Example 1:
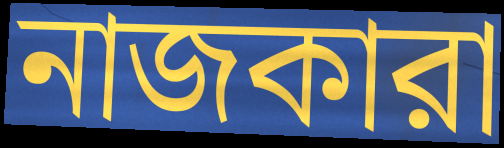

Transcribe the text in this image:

নাজকারা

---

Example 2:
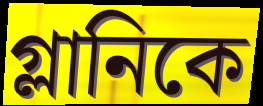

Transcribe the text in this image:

গ্লানিকে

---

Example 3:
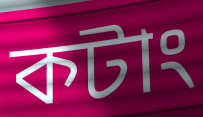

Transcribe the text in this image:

কটাং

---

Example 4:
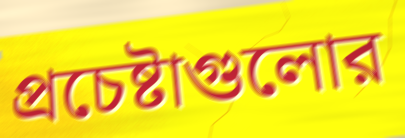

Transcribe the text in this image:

প্রচেষ্টাগুলোর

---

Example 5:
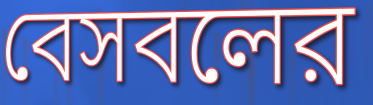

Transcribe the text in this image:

বেসবলের